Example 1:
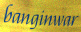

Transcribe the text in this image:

banginwar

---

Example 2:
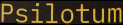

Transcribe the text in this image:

Psilotum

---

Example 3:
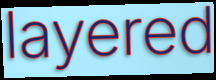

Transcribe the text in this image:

layered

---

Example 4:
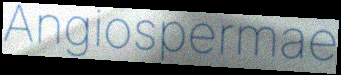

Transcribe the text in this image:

Angiospermae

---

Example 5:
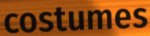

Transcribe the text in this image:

costumes